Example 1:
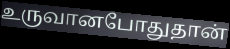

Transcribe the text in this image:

உருவானபோதுதான்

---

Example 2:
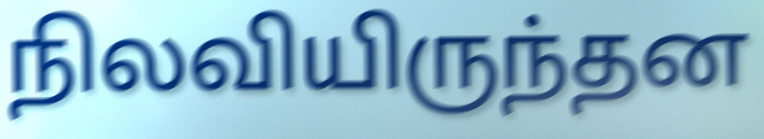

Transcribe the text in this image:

நிலவியிருந்தன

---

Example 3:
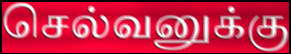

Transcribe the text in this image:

செல்வனுக்கு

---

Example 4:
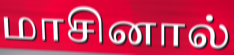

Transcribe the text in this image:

மாசினால்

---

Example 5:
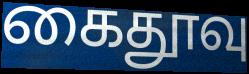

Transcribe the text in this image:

கைதூவு